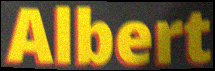
Albert